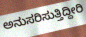
ಅನುಸರಿಸುತ್ತಿದ್ದೀರಿ